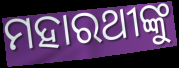
ମହାରଥୀଙ୍କୁ